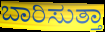
ಬಾರಿಸುತ್ತಾ